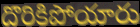
దొరికిపోయారు